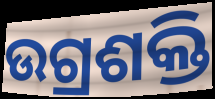
ଉଗ୍ରଶକ୍ତି